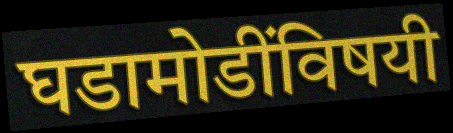
घडामोडींविषयी